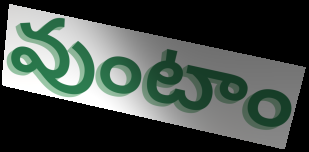
వుంటాం